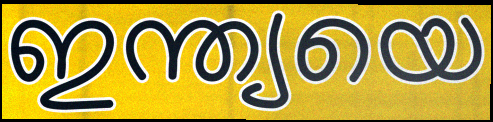
ഇന്ത്യയെ